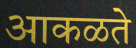
आकळते